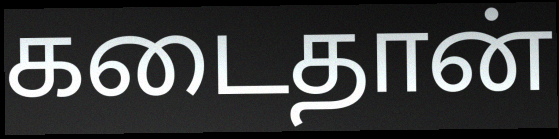
கடைதான்